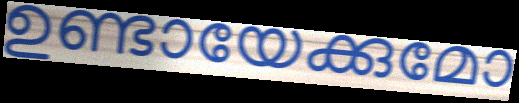
ഉണ്ടായേക്കുമോ